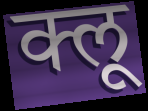
क्लू